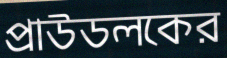
প্রাউডলকের